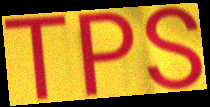
TPS